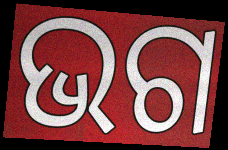
ଭଗ